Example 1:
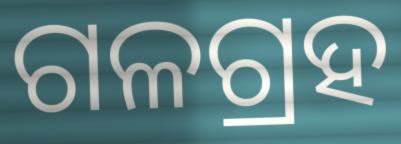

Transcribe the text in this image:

ଗଳଗ୍ରହ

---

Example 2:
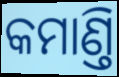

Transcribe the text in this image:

କମାଣ୍ତି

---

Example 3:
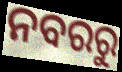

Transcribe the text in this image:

ନବରରୁ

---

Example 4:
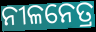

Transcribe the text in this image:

ନୀଳନେତ୍ର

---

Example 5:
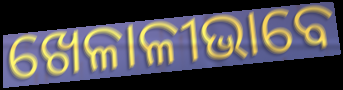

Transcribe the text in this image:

ଖେଳାଳୀଭାବେ